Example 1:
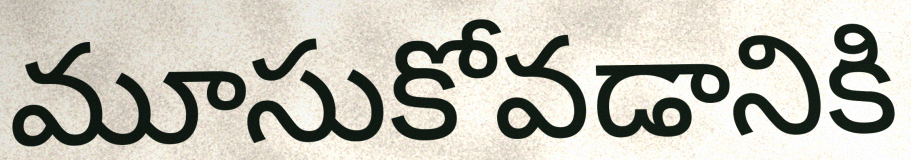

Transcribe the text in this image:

మూసుకోవడానికి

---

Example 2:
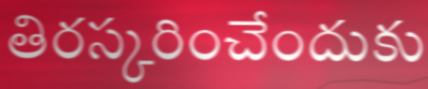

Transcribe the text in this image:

తిరస్కరించేందుకు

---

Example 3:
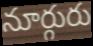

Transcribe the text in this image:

నూర్గురు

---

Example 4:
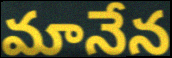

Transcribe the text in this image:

మానేన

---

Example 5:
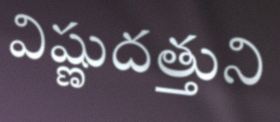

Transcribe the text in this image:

విష్ణుదత్తుని